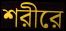
শরীরে